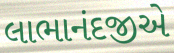
લાભાનંદજીએ